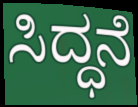
ಸಿದ್ಧನೆ